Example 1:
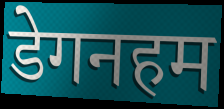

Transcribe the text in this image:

डेगनहम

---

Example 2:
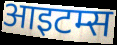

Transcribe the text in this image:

आइटम्‍स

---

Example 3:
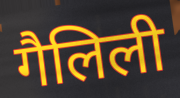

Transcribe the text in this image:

गैलिली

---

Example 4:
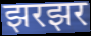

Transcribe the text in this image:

झरझर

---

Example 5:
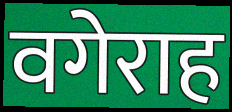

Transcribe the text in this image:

वगेराह